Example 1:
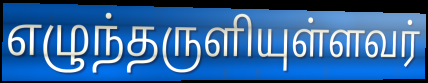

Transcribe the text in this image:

எழுந்தருளியுள்ளவர்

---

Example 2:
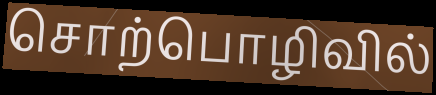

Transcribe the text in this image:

சொற்பொழிவில்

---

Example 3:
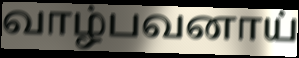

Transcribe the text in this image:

வாழ்பவனாய்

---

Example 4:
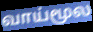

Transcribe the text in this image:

வாய்மூல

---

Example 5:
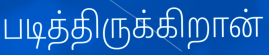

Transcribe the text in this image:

படித்திருக்கிறான்